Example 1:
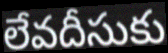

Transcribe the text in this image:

లేవదీసుకు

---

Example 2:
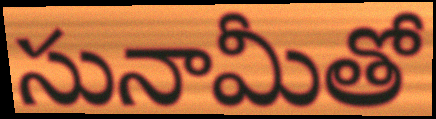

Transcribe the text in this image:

సునామీతో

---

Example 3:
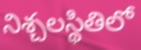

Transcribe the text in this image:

నిశ్చలస్థితిలో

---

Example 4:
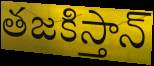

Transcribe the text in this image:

తజకిస్తాన్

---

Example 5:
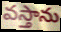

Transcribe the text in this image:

వస్తాను